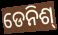
ଡେନିଶ୍